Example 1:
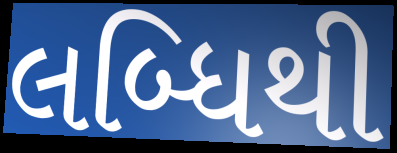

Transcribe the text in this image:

લબ્ધિથી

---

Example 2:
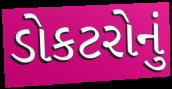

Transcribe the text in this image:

ડોકટરોનું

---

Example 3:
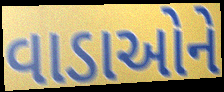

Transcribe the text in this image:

વાડાઓને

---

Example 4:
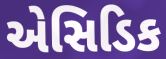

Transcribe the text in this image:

એસિડિક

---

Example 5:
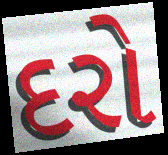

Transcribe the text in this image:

દરો